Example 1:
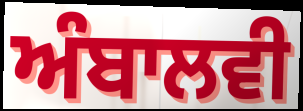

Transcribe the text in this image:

ਅੰਬਾਲਵੀ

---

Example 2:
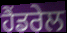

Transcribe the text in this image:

ਹੈਂਡਰੇਲ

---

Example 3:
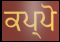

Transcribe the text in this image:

ਕਪ੍ਪੋ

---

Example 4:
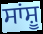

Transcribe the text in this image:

ਸਾਂਸ਼ੂ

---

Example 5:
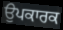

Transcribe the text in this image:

ਉਪਕਾਰਕ